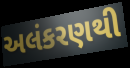
અલંકરણથી